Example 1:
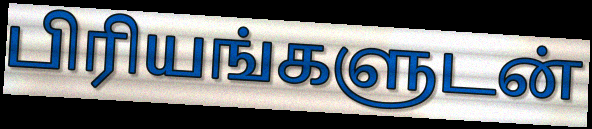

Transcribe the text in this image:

பிரியங்களுடன்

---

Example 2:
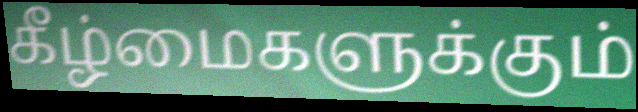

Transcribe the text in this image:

கீழ்மைகளுக்கும்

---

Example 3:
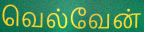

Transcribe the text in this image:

வெல்வேன்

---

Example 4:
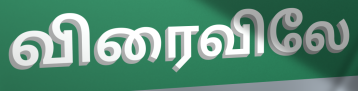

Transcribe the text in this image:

விரைவிலே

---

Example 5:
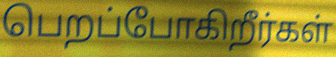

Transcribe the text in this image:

பெறப்போகிறீர்கள்